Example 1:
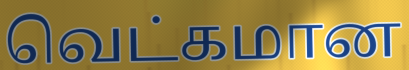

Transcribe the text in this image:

வெட்கமான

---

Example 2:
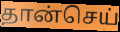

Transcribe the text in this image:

தான்செய்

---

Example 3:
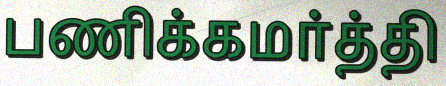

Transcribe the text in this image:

பணிக்கமர்த்தி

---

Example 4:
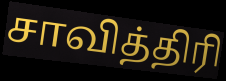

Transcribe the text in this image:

சாவித்திரி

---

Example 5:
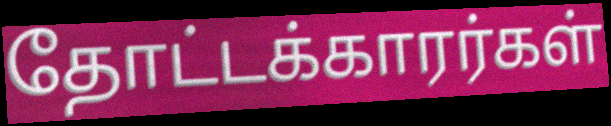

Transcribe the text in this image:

தோட்டக்காரர்கள்